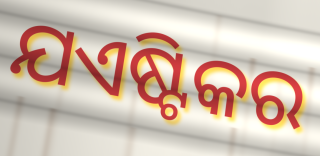
ଯଏଷ୍ଟିକର